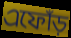
এফোঁড়